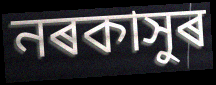
নৰকাসুৰ